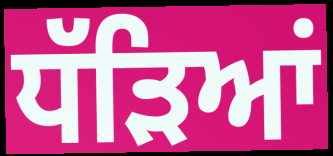
ਧੱੜਿਆਂ